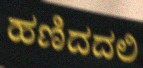
ಹಣಿದದಲಿ